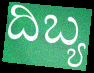
ದಿಬ್ಯ